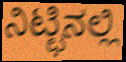
ನಿಟ್ಟಿನಲ್ಲಿ